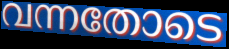
വന്നതോടെ